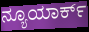
ನ್ಯೂಯಾರ್ಕ್